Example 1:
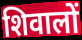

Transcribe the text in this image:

शिवालों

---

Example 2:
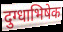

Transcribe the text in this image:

दुग्धाभिषेक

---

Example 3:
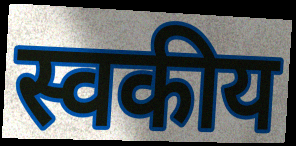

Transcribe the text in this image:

स्वकीय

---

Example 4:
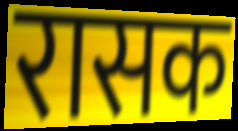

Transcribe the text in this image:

रासक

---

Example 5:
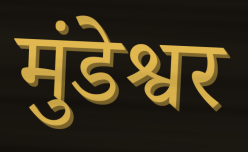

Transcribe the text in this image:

मुंडेश्वर